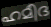
ഹമീദ